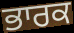
ਭਾਰਕ